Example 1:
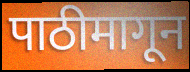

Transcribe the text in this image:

पाठीमागून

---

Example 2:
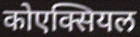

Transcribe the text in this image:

कोएक्सियल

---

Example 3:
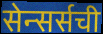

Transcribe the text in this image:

सेन्सर्सची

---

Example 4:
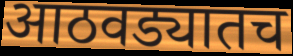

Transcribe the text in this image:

आठवड्यातच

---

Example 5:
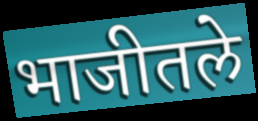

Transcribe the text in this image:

भाजीतले